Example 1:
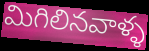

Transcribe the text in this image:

మిగిలినవాళ్ళ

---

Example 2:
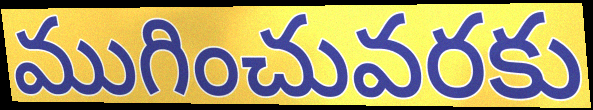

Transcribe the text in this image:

ముగించువరకు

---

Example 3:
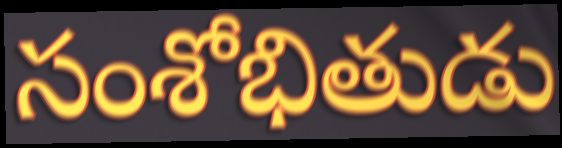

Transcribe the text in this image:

సంశోభితుడు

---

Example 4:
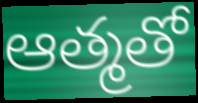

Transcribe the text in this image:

ఆత్మతో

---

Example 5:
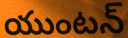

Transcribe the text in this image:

యుంటన్